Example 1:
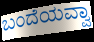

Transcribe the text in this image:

ಬಂದೆಯವ್ವಾ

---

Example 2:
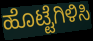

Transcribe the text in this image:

ಹೊಟ್ಟೆಗಿಳಿಸಿ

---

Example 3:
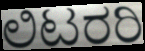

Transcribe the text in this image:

ಲಿಟರರಿ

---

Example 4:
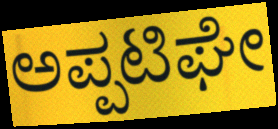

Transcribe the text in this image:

ಅಪ್ಪಟಿಘೇ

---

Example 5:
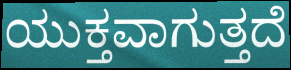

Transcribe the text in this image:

ಯುಕ್ತವಾಗುತ್ತದೆ